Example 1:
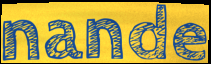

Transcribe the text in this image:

nande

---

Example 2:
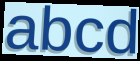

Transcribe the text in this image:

abcd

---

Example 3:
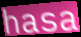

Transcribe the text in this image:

hasa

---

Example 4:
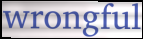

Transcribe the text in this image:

wrongful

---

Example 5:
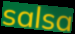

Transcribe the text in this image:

salsa